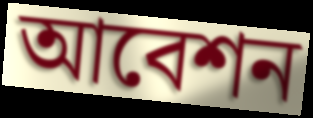
আবেশন